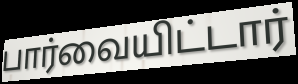
பார்வையிட்டார்